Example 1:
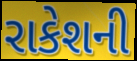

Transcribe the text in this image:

રાકેશની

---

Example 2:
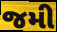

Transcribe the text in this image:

જમી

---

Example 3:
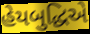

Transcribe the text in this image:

હેયબુદ્ધિએ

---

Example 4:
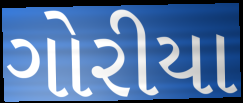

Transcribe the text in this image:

ગોરીયા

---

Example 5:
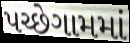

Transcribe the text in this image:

પચ્છેગામમાં